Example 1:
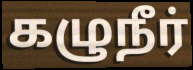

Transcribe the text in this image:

கழுநீர்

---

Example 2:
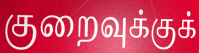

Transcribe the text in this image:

குறைவுக்குக்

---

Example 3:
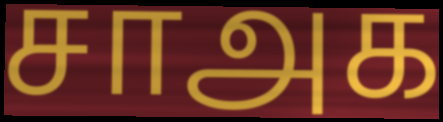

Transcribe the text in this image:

சாஅக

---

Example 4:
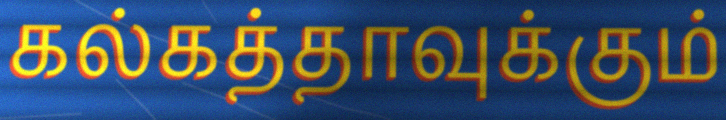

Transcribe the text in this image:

கல்கத்தாவுக்கும்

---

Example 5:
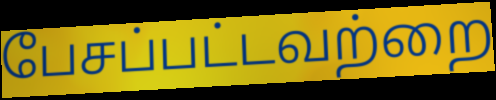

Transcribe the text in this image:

பேசப்பட்டவற்றை